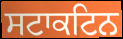
ਸਟਾਕਟਿਨ